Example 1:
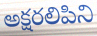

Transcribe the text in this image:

అక్షరలిపిని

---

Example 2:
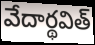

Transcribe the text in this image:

వేదార్థవిత్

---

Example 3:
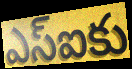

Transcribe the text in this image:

ఎస్ఐకు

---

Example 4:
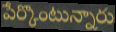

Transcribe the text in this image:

పేర్కొంటున్నారు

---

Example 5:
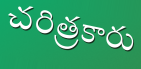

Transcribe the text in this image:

చరిత్రకారు